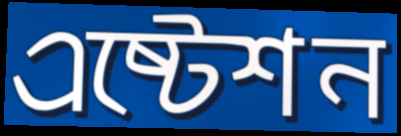
এষ্টেশন